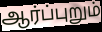
ஆர்ப்புறும்